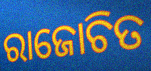
ରାଜୋଚିତ